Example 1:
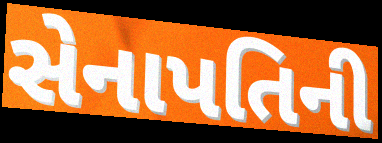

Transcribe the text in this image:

સેનાપતિની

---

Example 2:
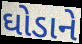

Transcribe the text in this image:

ઘોડાને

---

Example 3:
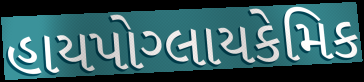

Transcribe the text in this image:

હાયપોગ્લાયકેમિક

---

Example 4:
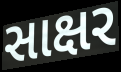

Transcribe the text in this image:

સાક્ષર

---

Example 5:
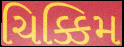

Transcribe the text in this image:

ચિક્કિમ